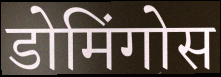
डोमिंगोस